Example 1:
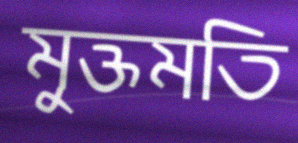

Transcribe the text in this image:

মুক্তমতি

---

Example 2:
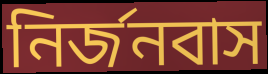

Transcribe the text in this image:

নির্জনবাস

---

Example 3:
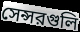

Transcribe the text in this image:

সেন্সরগুলি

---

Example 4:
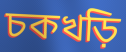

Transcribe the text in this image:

চকখড়ি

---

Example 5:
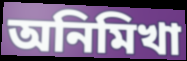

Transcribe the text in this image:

অনিমিখা